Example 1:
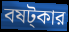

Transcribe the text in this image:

বষট্কার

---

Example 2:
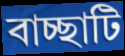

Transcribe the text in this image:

বাচ্ছাটি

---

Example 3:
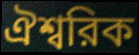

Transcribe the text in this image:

ঐশ্বরিক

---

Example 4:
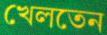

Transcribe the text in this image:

খেলতেন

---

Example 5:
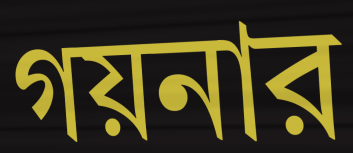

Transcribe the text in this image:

গয়নার